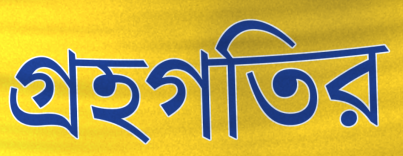
গ্রহগতির